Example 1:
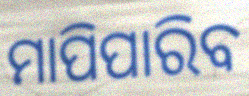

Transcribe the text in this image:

ମାପିପାରିବ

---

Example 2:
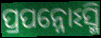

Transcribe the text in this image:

ପ୍ରପନ୍ନୋଽସ୍ମି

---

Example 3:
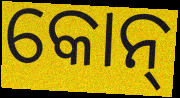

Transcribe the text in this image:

କୋନ୍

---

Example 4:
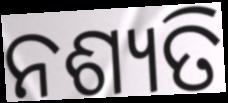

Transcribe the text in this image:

ନଶ୍ୟତି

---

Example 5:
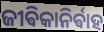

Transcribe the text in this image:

ଜୀଵିକାନିର୍ଵାହ